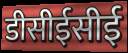
डीसीईसीई